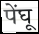
पेंघू